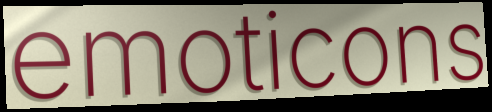
emoticons